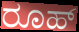
ರೂಹ್